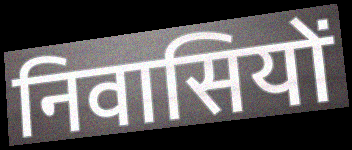
निवासियों